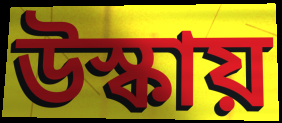
উস্কায়